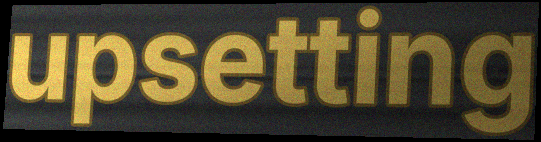
upsetting